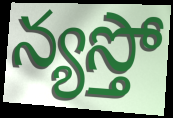
న్యస్తో